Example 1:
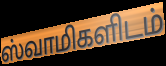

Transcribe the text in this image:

ஸ்வாமிகளிடம்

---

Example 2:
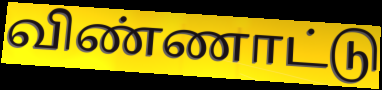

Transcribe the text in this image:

விண்ணாட்டு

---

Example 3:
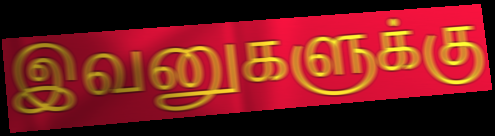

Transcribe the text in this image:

இவனுகளுக்கு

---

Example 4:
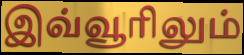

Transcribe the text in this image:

இவ்வூரிலும்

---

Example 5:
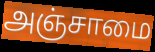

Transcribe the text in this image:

அஞ்சாமை